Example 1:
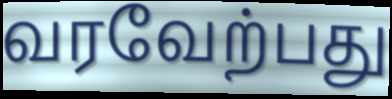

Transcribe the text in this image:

வரவேற்பது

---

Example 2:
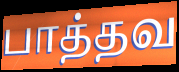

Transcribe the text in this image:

பாத்தவ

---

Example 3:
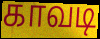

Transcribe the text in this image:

காவடி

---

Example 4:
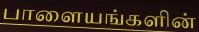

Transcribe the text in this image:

பாளையங்களின்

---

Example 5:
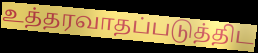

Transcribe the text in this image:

உத்தரவாதப்படுத்திட